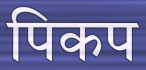
पिकप